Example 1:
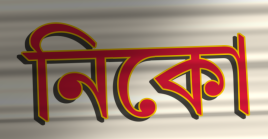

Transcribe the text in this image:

নিকো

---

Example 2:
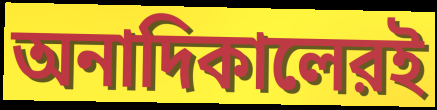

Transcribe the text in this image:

অনাদিকালেরই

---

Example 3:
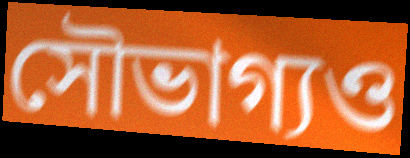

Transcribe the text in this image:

সৌভাগ্যও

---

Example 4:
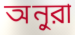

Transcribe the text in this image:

অনুরা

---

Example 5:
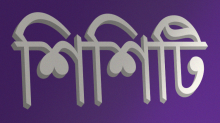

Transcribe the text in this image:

শিশিটি